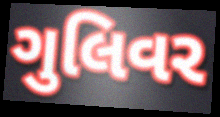
ગુલિવર